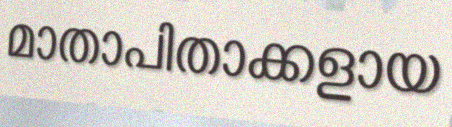
മാതാപിതാക്കളായ